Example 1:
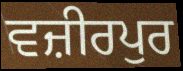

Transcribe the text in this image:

ਵਜ਼ੀਰਪੁਰ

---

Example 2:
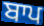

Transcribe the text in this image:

ਬਾਪ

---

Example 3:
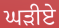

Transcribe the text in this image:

ਘੜੀਏ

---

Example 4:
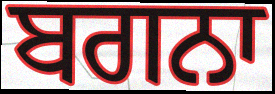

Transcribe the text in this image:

ਬਗਨਾ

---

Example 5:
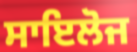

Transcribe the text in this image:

ਸਾਇਲੋਜ